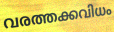
വരത്തക്കവിധം